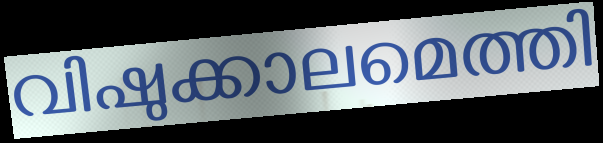
വിഷുക്കാലമെത്തി